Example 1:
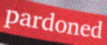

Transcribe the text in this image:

pardoned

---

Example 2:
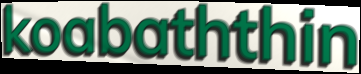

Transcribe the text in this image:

koabaththin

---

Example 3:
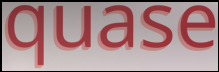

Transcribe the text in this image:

quase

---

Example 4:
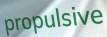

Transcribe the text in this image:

propulsive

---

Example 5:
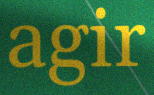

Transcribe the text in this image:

agir